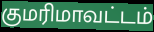
குமரிமாவட்டம்